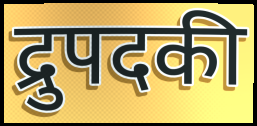
द्रुपदकी